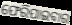
ଫେରିପାଇବାର